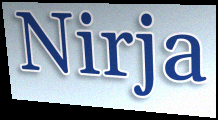
Nirja